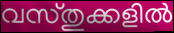
വസ്തുക്കളിൽ